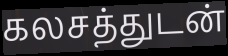
கலசத்துடன்